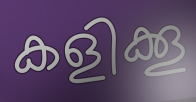
കളിക്കൂ